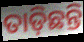
ତାଡ଼ିଛନ୍ତି